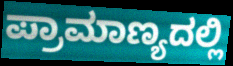
ಪ್ರಾಮಾಣ್ಯದಲ್ಲಿ